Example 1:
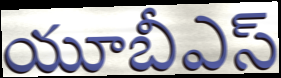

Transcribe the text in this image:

యూబీఎస్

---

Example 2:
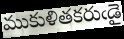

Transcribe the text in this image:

ముకుళితకరుఁడై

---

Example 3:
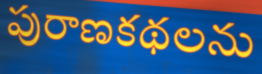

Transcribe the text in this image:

పురాణకథలను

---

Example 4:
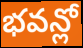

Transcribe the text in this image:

భవన్లో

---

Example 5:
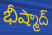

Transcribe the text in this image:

భీష్మాద్